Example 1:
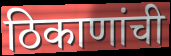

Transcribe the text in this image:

ठिकाणांची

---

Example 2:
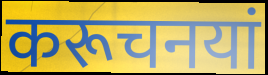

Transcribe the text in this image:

करूचनयां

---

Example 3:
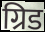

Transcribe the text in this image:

ग्रिड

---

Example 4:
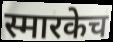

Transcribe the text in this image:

स्मारकेच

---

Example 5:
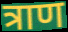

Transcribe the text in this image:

त्राण